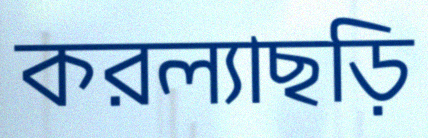
করল্যাছড়ি